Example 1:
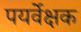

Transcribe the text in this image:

पयर्वेक्षक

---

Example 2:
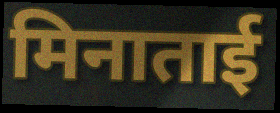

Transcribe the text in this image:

मिनाताई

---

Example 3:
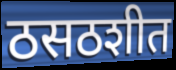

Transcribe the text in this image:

ठसठशीत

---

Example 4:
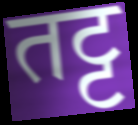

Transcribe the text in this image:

तट्ट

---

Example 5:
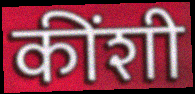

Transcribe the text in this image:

कींशी